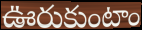
ఊరుకుంటాం